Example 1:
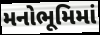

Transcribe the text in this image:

મનોભૂમિમાં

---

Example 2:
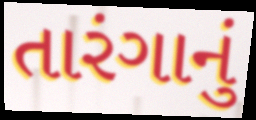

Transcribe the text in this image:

તારંગાનું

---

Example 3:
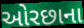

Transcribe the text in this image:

ઓરછાના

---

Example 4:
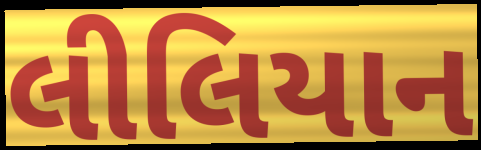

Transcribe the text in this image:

લીલિયાન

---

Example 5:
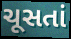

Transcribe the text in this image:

ચૂસતાં